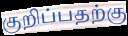
குறிப்பதற்கு